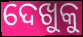
ଦେଖୁକୁ